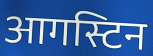
आगस्टिन